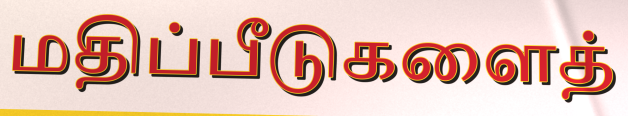
மதிப்பீடுகளைத்